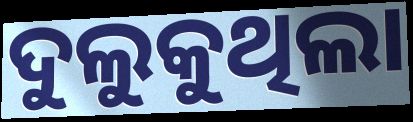
ଦୁଲୁକୁଥିଲା